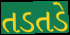
તડતડે